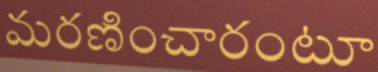
మరణించారంటూ